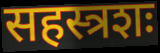
सहस्त्रशः